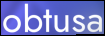
obtusa